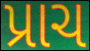
પ્રાચ